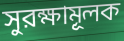
সুরক্ষামূলক